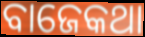
ବାଜେକଥା